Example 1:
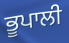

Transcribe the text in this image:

ਭੂਪਾਲੀ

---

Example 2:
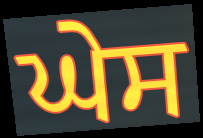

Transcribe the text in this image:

ਘੇਸ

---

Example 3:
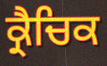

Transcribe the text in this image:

ਕ੍ਰੈਚਿਕ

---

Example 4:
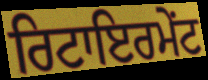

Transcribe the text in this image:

ਰਿਟਾਇਰਮੇਂਟ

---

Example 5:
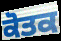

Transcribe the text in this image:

ਕੋਤਕ